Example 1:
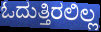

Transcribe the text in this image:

ಓದುತ್ತಿರಲಿಲ್ಲ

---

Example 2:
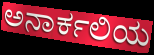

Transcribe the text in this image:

ಅನಾರ್ಕಲಿಯ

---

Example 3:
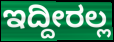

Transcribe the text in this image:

ಇದ್ದೀರಲ್ಲ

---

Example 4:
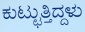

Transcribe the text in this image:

ಕುಟ್ಟುತ್ತಿದ್ದಳು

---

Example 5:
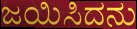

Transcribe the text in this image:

ಜಯಿಸಿದನು